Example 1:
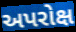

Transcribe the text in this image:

અપરોક્ષ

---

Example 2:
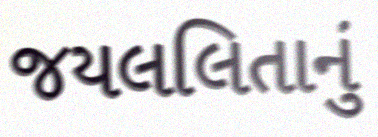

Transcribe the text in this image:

જયલલિતાનું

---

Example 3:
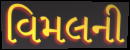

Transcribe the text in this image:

વિમલની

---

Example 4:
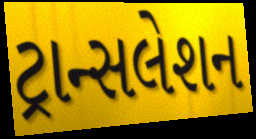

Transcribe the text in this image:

ટ્રાન્સલેશન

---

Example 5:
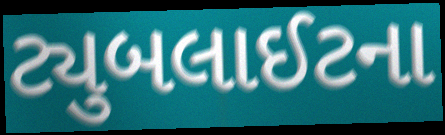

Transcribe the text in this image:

ટ્યુબલાઈટના